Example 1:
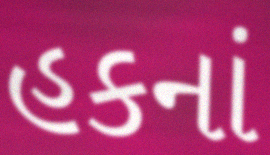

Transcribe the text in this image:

હકનાં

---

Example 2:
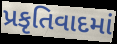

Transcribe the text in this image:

પ્રકૃતિવાદમાં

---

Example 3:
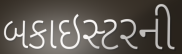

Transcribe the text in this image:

બકાઇસ્ટરની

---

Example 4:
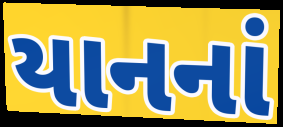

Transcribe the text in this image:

યાનનાં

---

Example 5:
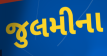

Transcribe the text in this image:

જુલમીના